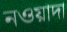
নওয়াদা